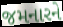
જમનારને